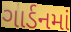
ગાર્ડનમાં